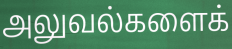
அலுவல்களைக்